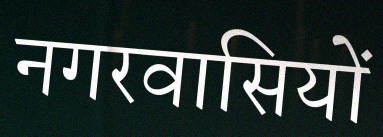
नगरवासियों